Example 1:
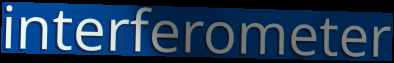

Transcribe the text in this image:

interferometer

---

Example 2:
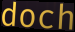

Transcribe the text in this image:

doch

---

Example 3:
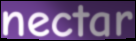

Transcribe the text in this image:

nectar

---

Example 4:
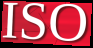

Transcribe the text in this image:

ISO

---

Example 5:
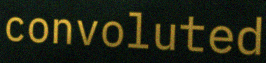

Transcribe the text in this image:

convoluted